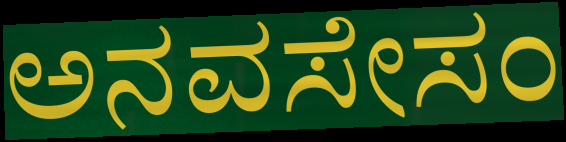
ಅನವಸೇಸಂ